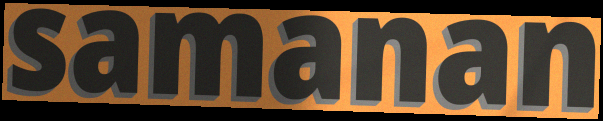
samanan